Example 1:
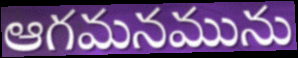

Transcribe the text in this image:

ఆగమనమును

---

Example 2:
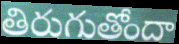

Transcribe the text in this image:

తిరుగుతోందా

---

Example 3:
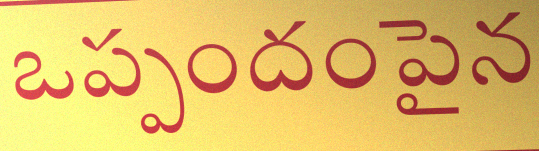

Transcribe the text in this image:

ఒప్పందంపైన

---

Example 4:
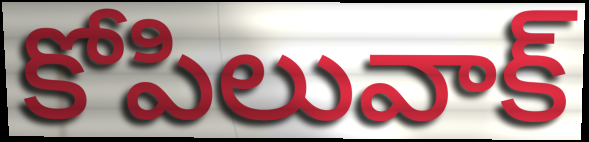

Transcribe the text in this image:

కోపిలువాక్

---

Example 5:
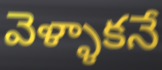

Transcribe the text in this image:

వెళ్ళాకనే